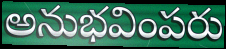
అనుభవింపరు